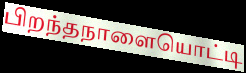
பிறந்தநாளையொட்டி